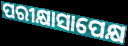
ପରୀକ୍ଷାସାପେକ୍ଷ